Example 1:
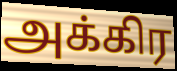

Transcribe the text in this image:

அக்கிர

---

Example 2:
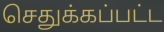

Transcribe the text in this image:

செதுக்கப்பட்ட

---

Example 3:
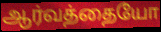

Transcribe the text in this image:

ஆர்வத்தையோ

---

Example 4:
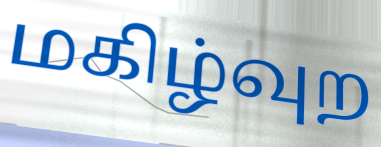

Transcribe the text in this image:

மகிழ்வுற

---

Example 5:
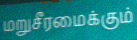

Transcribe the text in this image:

மறுசீரமைக்கும்